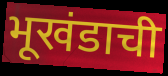
भूखंडाची